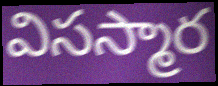
విసస్మార